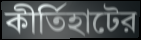
কীর্তিহাটের